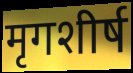
मृगशीर्ष